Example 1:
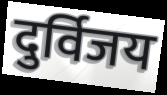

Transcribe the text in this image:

दुर्विजय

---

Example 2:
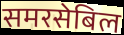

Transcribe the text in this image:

समरसेबिल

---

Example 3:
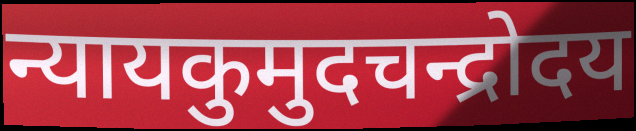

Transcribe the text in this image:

न्यायकुमुदचन्द्रोदय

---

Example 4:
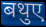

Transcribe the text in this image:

बथुए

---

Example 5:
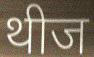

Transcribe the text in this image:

थीज